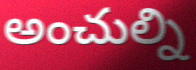
అంచుల్ని